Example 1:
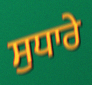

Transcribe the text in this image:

ਸੁਧਾਰੇ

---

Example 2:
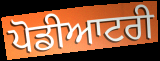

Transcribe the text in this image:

ਪੋਡੀਆਟਰੀ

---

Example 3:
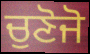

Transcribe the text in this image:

ਚੁਣੋਜੋ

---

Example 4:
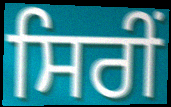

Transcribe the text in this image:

ਸਿਰੀਂ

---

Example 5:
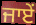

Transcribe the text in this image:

ਜਾਏਂ